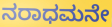
ನರಾಧಮನೇ